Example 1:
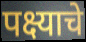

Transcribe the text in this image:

पक्ष्याचे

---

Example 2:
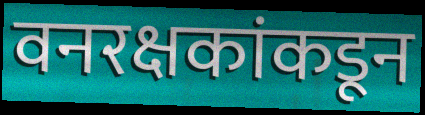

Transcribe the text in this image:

वनरक्षकांकडून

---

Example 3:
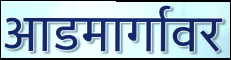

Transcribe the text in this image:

आडमार्गावर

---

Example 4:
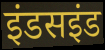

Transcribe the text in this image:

इंडसइंड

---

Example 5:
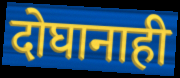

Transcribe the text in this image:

दोघानाही